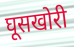
घूसखोरी